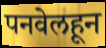
पनवेलहून